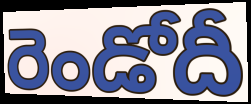
రెండోదీ